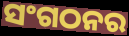
ସଂଗଠନର